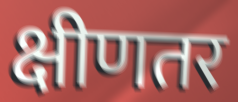
क्षीणतर